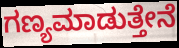
ಗಣ್ಯಮಾಡುತ್ತೇನೆ